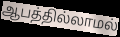
ஆபத்தில்லாமல்